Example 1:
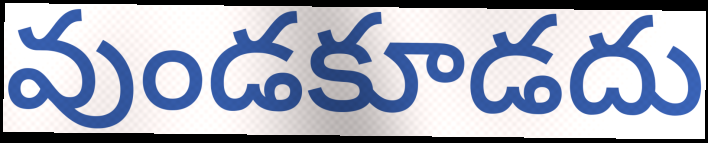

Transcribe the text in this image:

వుండకూడదు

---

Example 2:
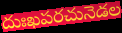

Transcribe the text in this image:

దుఃఖపరచునెడల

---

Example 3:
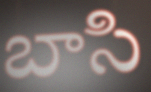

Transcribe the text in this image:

బాసి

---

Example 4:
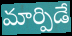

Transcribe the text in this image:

మార్పిడే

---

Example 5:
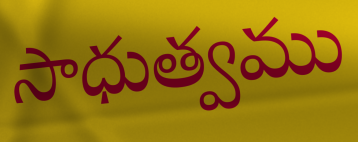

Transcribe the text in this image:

సాధుత్వము